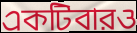
একটিবারও